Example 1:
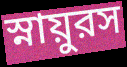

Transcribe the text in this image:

স্নায়ুরস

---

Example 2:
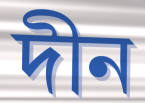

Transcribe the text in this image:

দীন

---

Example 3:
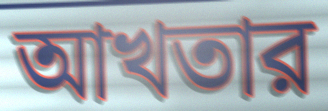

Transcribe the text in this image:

আখতার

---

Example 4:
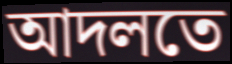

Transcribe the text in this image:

আদলতে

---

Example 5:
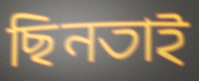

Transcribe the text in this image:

ছিনতাই